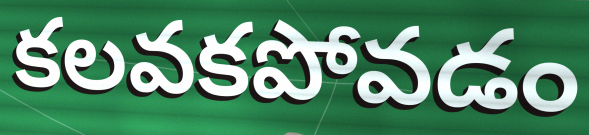
కలవకపోవడం